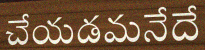
చేయడమనేదే